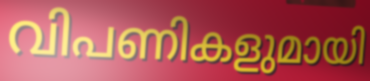
വിപണികളുമായി